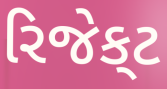
રિજેક્‌ટ